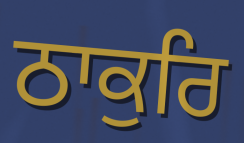
ਠਾਕੁਰਿ